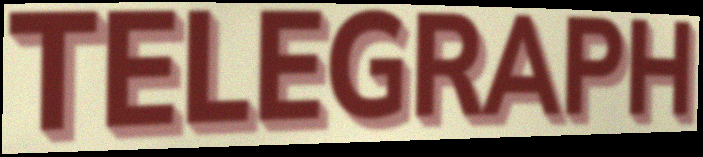
TELEGRAPH